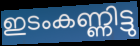
ഇടംകണ്ണിട്ടു